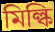
মিল্কি